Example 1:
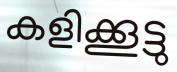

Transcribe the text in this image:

കളിക്കൂട്ടു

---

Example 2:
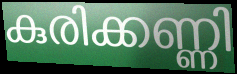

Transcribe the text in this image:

കുരിക്കണ്ണി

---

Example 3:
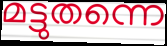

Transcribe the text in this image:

മട്ടുതന്നെ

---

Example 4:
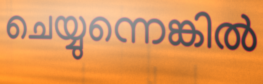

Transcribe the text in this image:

ചെയ്യുന്നെങ്കിൽ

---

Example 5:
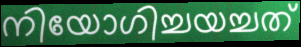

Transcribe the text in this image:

നിയോഗിച്ചയച്ചത്